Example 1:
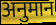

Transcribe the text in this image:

अनुमान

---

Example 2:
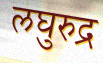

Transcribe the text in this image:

लघुरुद्र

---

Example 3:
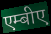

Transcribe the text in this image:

एम्बीए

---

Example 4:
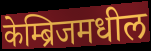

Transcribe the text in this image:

केम्ब्रिजमधील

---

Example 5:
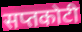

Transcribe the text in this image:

सप्तकोटी